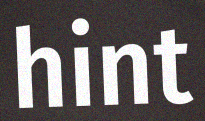
hint